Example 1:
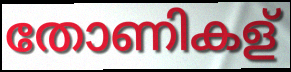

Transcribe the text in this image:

തോണികള്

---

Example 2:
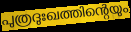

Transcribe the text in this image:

പുത്രദുഃഖത്തിന്റെയും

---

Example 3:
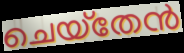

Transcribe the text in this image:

ചെയ്‌തേൻ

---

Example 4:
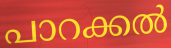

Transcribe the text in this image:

പാറക്കൽ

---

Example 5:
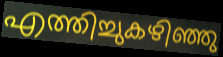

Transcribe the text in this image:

എത്തിച്ചുകഴിഞ്ഞു